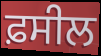
ਫ਼ਸੀਲ